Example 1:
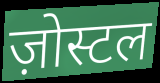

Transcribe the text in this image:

ज़ोस्टल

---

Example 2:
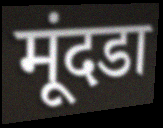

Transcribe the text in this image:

मूंदडा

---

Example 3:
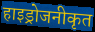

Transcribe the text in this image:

हाइड्रोजनीकृत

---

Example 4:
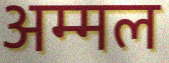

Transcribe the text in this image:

अम्मल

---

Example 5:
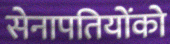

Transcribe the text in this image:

सेनापतियोंको